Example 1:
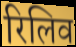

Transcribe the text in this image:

रिलिव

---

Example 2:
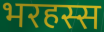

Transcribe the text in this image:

भरहस्स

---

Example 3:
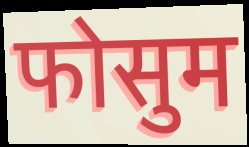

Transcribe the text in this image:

फोसुम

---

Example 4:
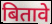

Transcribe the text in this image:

बितावे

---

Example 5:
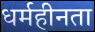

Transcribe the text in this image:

धर्महीनता